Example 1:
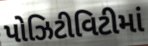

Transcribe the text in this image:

પોઝિટીવિટીમાં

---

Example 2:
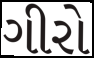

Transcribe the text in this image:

ગીરો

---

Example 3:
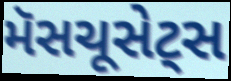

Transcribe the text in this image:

મૅસચૂસેટ્સ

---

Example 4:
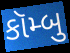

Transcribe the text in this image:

કૉમ્બુ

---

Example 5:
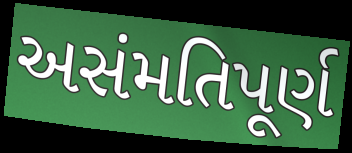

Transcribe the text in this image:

અસંમતિપૂર્ણ